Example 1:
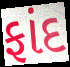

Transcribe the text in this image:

ફાંદ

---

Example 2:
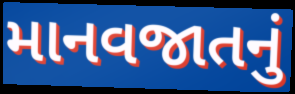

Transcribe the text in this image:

માનવજાતનું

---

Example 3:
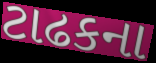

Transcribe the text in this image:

ટાઢકના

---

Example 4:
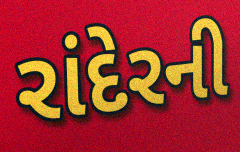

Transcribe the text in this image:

રાંદેરની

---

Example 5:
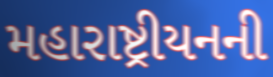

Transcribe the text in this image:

મહારાષ્ટ્રીયનની